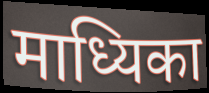
माध्यिका